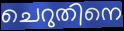
ചെറുതിനെ